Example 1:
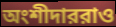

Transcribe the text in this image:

অংশীদাররাও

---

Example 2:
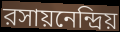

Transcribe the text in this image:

রসায়নেন্দ্রিয়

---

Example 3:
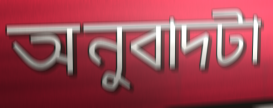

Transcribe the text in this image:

অনুবাদটা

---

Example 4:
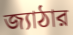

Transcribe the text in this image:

জ্যাঠার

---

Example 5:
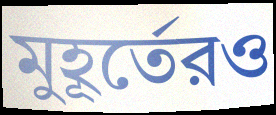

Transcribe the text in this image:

মুহূর্তেরও